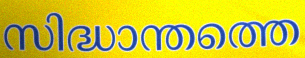
സിദ്ധാന്തത്തെ